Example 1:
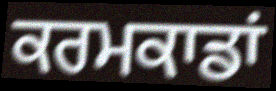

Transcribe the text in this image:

ਕਰਮਕਾਡਾਂ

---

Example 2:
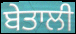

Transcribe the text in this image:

ਬੇਤਾਲੀ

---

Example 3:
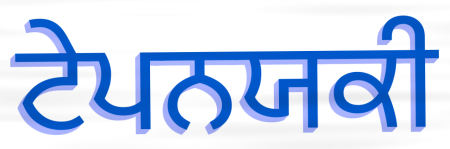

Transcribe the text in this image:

ਟੇਪਨਯਕੀ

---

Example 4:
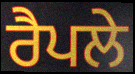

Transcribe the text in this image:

ਰੈਪਲੇ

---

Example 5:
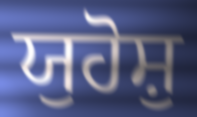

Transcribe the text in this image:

ਯੁਹੋਸ਼ੁ